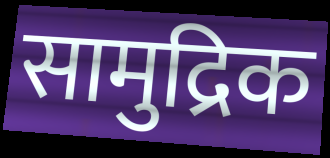
सामुद्रिक